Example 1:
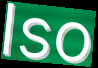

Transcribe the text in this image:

Iso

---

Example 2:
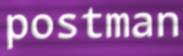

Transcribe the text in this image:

postman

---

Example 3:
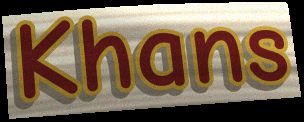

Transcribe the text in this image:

Khans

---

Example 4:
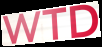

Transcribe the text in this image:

WTD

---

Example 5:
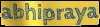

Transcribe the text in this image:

abhipraya